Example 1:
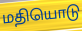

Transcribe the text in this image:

மதியொடு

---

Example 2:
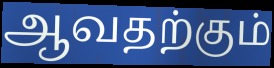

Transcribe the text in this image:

ஆவதற்கும்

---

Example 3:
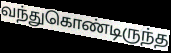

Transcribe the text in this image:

வந்துகொண்டிருந்த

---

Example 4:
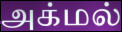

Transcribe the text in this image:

அக்மல்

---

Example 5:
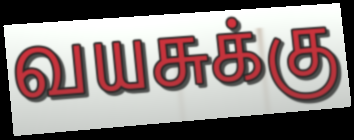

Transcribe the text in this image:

வயசுக்கு